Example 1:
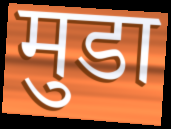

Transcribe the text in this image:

मुडा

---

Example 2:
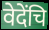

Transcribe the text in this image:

वेदेंचि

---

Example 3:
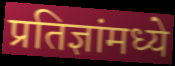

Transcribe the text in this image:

प्रतिज्ञांमध्ये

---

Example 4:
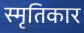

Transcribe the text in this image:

स्मृतिकार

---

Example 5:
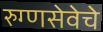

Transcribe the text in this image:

रुग्णसेवेचे